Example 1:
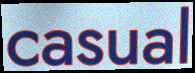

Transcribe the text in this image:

casual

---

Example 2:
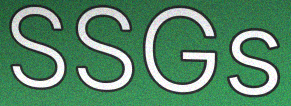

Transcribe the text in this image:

SSGs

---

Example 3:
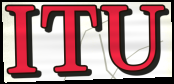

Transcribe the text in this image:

ITU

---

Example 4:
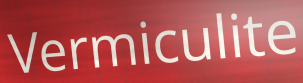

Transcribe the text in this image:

Vermiculite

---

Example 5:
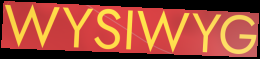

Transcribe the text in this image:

WYSIWYG